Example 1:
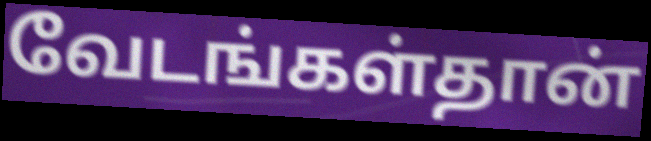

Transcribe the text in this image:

வேடங்கள்தான்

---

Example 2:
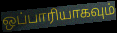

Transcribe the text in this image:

ஒப்பாரியாகவும்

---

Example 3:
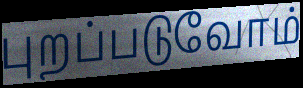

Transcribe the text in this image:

புறப்படுவோம்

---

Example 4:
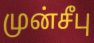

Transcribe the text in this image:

முன்சீபு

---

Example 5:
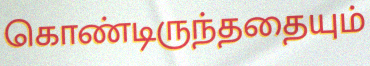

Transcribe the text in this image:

கொண்டிருந்ததையும்